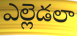
ఎల్లెడలా